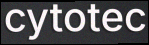
cytotec